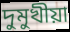
দুমুখীয়া